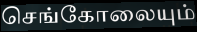
செங்கோலையும்